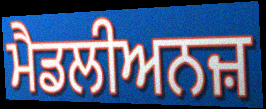
ਮੈਡਲੀਅਨਜ਼